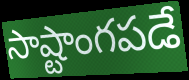
సాష్టాంగపడే